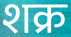
शक्र